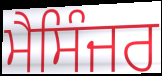
ਮੈਸਿੰਜਰ